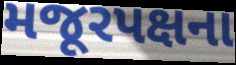
મજૂરપક્ષના